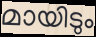
മായിടും